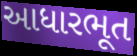
આધારભૂત